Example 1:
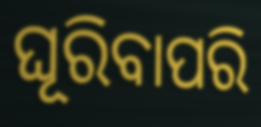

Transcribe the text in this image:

ଘୂରିବାପରି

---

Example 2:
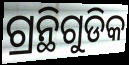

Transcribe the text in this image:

ଗ୍ରନ୍ଥିଗୁଡିକ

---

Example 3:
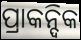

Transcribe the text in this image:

ପ୍ରାକନ୍ଦିକ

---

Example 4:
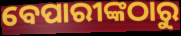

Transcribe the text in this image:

ବେପାରୀଙ୍କଠାରୁ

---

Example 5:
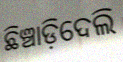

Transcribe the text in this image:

ଛିଞ୍ଚାଡ଼ିଦେଲି